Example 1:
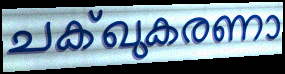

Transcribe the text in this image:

ചക്ഖുകരണാ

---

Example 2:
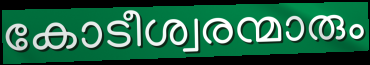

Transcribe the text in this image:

കോടീശ്വരന്മാരും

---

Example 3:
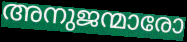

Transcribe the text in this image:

അനുജന്മാരോ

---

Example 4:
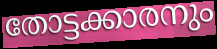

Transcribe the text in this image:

തോട്ടക്കാരനും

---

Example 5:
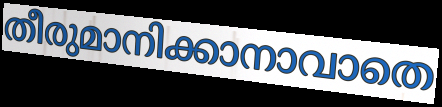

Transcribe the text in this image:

തീരുമാനിക്കാനാവാതെ